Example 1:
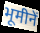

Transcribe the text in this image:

भूमीनें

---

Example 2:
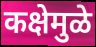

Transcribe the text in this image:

कक्षेमुळे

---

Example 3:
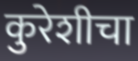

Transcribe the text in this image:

कुरेशीचा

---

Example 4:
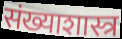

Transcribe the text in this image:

संख्याशास्त्र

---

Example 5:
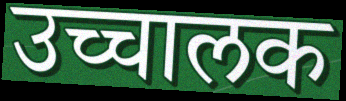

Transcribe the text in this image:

उच्चालक